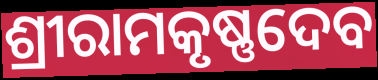
ଶ୍ରୀରାମକୃଷ୍ଣଦେବ